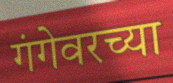
गंगेवरच्या